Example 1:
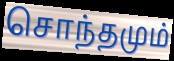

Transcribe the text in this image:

சொந்தமும்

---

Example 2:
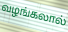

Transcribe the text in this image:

வழங்கலால்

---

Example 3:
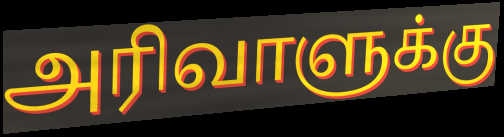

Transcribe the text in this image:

அரிவாளுக்கு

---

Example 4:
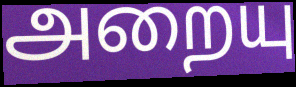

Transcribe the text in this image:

அறையு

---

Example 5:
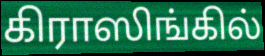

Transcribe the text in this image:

கிராஸிங்கில்